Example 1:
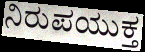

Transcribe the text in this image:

ನಿರುಪಯುಕ್ತ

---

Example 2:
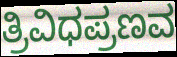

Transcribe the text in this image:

ತ್ರಿವಿಧಪ್ರಣವ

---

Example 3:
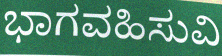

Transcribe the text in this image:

ಭಾಗವಹಿಸುವಿ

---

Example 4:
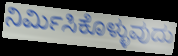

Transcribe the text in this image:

ನಿರ್ಮಿಸಿಕೊಳ್ಳುವುದು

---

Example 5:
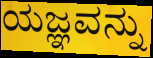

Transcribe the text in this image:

ಯಜ್ಞವನ್ನು